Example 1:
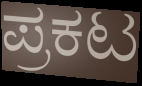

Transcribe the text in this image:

ಪ್ರಕಟ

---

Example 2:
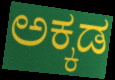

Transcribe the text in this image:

ಅಕ್ಕಡ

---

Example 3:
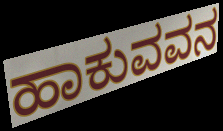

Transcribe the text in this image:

ಹಾಕುವವನ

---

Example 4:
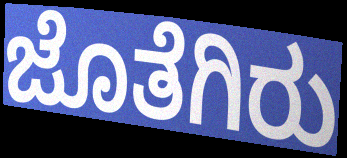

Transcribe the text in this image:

ಜೊತೆಗಿರು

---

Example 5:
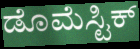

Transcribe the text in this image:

ಡೊಮೆಸ್ಟಿಕ್